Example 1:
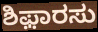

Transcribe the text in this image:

ಶಿಫ಼ಾರಸು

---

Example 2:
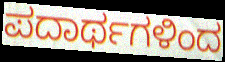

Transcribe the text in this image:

ಪದಾರ್ಥಗಳಿಂದ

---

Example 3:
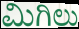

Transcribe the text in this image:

ಮಿಗಿಲು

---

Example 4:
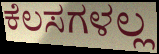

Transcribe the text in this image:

ಕೆಲಸಗಳಲ್ಲ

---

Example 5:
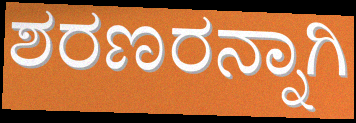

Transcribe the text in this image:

ಶರಣರನ್ನಾಗಿ